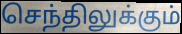
செந்திலுக்கும்